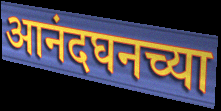
आनंदघनच्या